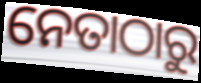
ନେତାଠାରୁ